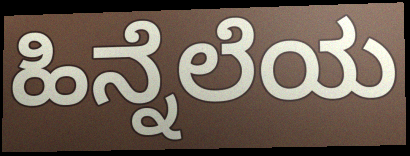
ಹಿನ್ನೆಲೆಯ